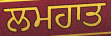
ਲਮਹਾਤ